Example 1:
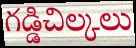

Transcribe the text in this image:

గడ్డిచిల్కలు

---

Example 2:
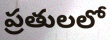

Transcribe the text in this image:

ప్రతులలో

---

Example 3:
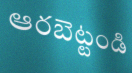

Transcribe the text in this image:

ఆరబెట్టండి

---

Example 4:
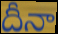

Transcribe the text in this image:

దీనా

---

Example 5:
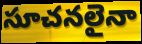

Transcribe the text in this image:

సూచనలైనా